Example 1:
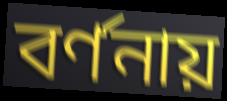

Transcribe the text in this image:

বর্ণনায়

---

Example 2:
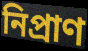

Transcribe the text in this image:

নিপ্রাণ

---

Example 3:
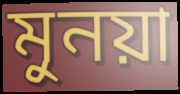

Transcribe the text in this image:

মুনয়া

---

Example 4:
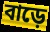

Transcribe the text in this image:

বাড়ে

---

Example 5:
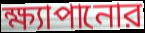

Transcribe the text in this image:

ক্ষ্যাপানোর